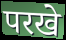
परखे